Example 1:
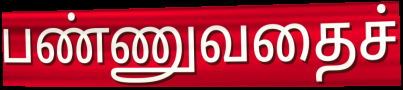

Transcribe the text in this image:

பண்ணுவதைச்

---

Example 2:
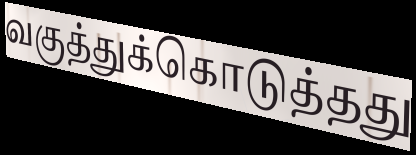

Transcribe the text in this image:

வகுத்துக்கொடுத்தது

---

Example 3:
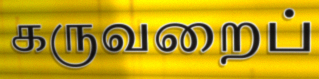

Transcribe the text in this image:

கருவறைப்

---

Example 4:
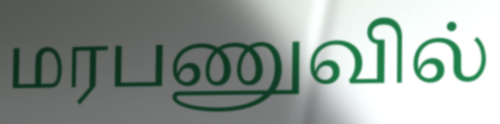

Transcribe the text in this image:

மரபணுவில்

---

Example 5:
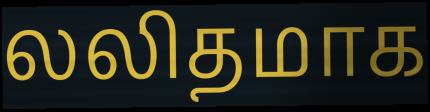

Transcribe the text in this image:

லலிதமாக